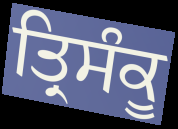
ਤ੍ਰਿਸੰਕੂ